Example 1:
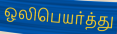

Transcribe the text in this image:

ஒலிபெயர்த்து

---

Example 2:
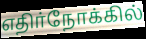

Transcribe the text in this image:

எதிர்நோக்கில்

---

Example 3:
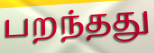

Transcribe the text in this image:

பறந்தது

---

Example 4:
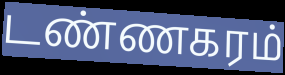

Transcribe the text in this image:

டண்ணகரம்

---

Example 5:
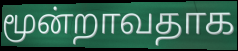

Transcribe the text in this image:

மூன்றாவதாக